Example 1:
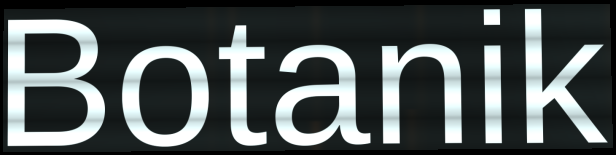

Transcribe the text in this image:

Botanik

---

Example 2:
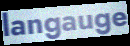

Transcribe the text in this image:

langauge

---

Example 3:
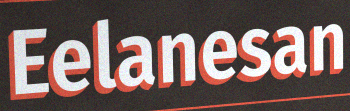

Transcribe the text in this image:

Eelanesan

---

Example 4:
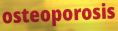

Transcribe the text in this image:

osteoporosis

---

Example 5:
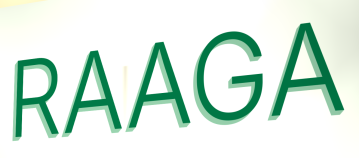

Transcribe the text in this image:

RAAGA